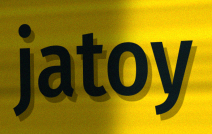
jatoy